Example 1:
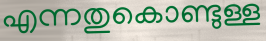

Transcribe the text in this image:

എന്നതുകൊണ്ടുള്ള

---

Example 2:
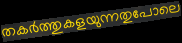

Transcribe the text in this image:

തകർത്തുകളയുന്നതുപോലെ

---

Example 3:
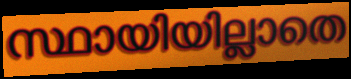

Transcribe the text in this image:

സ്ഥായിയില്ലാതെ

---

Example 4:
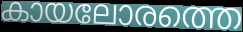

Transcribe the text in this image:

കായലോരത്തെ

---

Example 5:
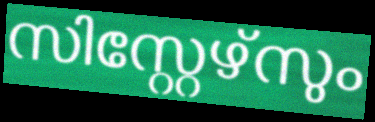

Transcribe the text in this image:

സിസ്റ്റേഴ്സും